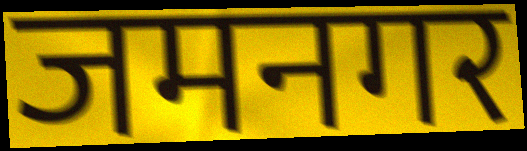
जमनगर